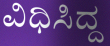
ವಿಧಿಸಿದ್ದ